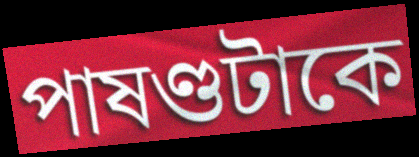
পাষণ্ডটাকে